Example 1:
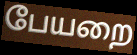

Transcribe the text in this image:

பேயறை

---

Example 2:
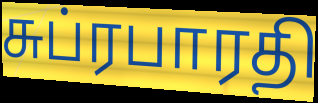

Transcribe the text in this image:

சுப்ரபாரதி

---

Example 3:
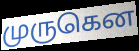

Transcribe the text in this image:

முருகென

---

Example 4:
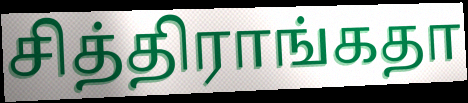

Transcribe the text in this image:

சித்திராங்கதா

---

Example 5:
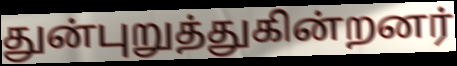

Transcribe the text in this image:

துன்புறுத்துகின்றனர்